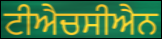
ਟੀਐਚਸੀਐਨ